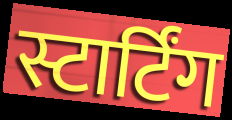
स्टार्टिंग